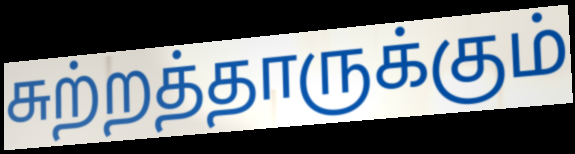
சுற்றத்தாருக்கும்